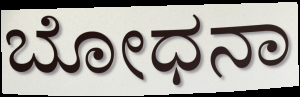
ಬೋಧನಾ